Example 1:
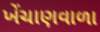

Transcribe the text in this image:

ખેંચાણવાળા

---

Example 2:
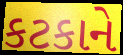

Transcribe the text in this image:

કટકાને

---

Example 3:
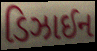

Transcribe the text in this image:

ડિઝાઈન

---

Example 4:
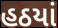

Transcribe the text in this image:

હઠયાં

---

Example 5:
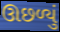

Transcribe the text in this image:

ઊછળ્યું